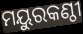
ମୟୁରକଣ୍ଠୀ